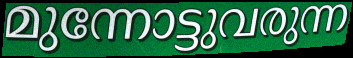
മുന്നോട്ടുവരുന്ന